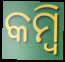
କମ୍ବି